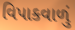
વિપાકવાળું